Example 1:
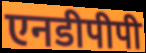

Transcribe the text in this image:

एनडीपीपी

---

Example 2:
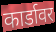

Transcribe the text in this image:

कार्डावर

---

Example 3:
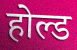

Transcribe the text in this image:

होल्ड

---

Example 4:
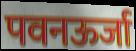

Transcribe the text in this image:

पवनऊर्जा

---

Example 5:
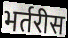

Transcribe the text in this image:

भर्तरीस